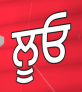
ਲੂਓ